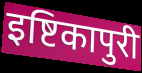
इष्टिकापुरी